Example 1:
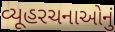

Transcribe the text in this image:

વ્યૂહરચનાઓનું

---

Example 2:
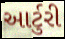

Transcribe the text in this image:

આર્ટુરી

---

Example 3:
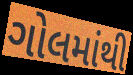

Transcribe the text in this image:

ગોલમાંથી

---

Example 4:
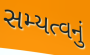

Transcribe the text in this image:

સમ્યત્વનું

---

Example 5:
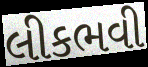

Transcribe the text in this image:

લીકભવી